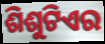
ଶିଶୁଟିଏର